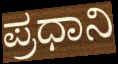
ಪ್ರಧಾನಿ